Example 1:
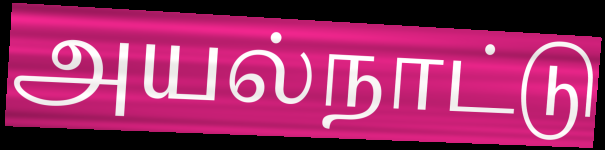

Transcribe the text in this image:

அயல்நாட்டு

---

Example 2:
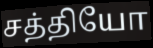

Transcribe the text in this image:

சத்தியோ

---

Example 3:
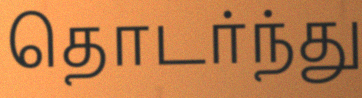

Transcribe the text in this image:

தொடர்ந்து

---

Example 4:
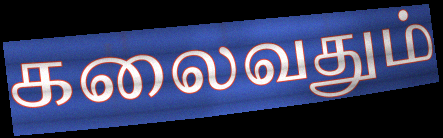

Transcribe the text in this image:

கலைவதும்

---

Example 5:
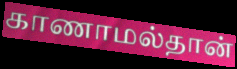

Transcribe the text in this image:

காணாமல்தான்